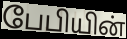
பேபியின்